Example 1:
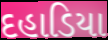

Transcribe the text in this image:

દહાડિયા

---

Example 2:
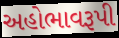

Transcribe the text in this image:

અહોભાવરૂપી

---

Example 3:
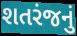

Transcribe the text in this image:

શતરંજનું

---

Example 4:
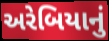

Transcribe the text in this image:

અરેબિયાનું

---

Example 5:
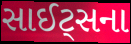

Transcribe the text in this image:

સાઈટ્સના